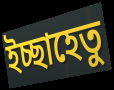
ইচ্ছাহেতু